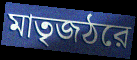
মাতৃজঠরে